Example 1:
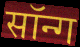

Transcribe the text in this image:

सॉन्ग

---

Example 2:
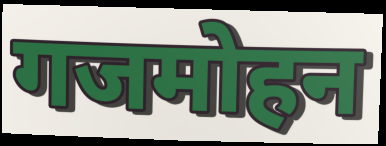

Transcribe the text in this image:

गजमोहन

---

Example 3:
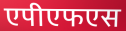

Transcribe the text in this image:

एपीएफएस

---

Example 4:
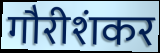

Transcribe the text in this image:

गौरीशंकर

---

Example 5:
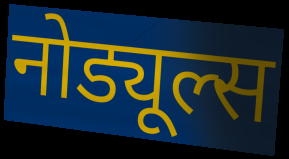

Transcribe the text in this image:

नोड्यूल्स